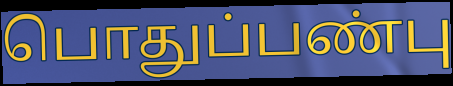
பொதுப்பண்பு